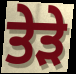
ਤੇੜੇ